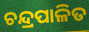
ଚନ୍ଦ୍ରପାଳିତ